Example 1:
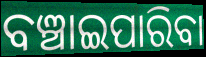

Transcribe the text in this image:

ବଞ୍ଚାଇପାରିବା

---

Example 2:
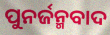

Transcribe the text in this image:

ପୁନର୍ଜନ୍ମବାଦ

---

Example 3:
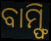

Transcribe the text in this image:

ବାମ୍ଫି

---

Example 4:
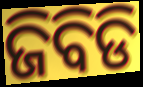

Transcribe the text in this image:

ଜିବିଡି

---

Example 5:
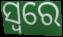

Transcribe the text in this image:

ସ୍ବରେ